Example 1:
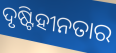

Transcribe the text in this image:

ଦୃଷ୍ଟିହୀନତାର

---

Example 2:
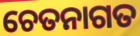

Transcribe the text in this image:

ଚେତନାଗତ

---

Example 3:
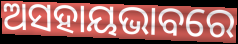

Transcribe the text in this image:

ଅସହାୟଭାବରେ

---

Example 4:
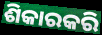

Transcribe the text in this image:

ଶିକାରକରି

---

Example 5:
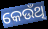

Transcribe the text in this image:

କେଉଁଥି